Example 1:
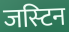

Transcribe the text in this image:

जस्‍टिन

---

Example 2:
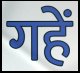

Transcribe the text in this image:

गहें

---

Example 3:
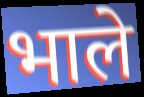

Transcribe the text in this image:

भाले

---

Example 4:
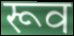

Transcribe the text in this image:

रूव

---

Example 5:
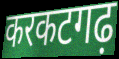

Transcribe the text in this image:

करकटगढ़